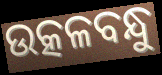
ଉତ୍କଳବନ୍ଧୁ